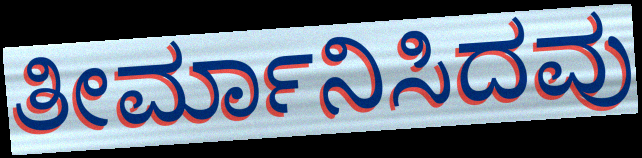
ತೀರ್ಮಾನಿಸಿದವು